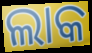
ଲାକ